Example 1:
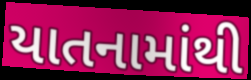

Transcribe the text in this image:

યાતનામાંથી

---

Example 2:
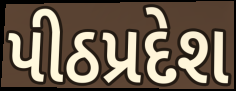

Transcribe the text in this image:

પીઠપ્રદેશ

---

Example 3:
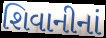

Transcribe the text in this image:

શિવાનીનાં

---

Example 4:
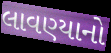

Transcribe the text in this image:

લાવણ્યાનો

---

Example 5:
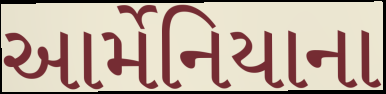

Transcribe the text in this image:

આર્મેનિયાના